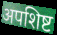
अपशिष्ट